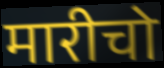
मारीचो